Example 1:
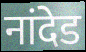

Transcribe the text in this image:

नांदेड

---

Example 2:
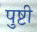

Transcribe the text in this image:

पुष्टी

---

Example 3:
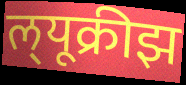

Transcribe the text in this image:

ल्यूक्रीझ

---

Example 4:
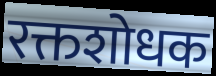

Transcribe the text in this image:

रक्तशोधक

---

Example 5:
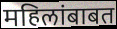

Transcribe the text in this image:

महिलांबाबत